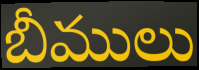
బీములు